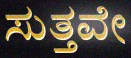
ಸುತ್ತವೇ